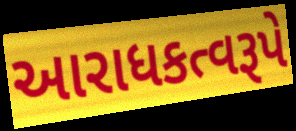
આરાધકત્વરૂપે